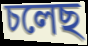
চলেছ